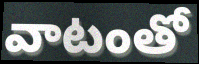
వాటంతో